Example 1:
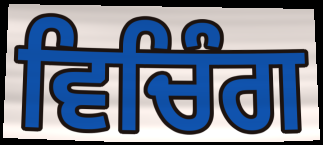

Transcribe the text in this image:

ਵਿਚਿੰਗ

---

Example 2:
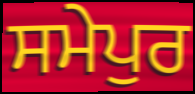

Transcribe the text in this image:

ਸਮੇਪੁਰ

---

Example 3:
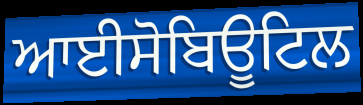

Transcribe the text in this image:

ਆਈਸੋਬਿਊਟਿਲ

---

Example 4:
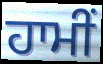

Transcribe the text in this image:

ਹਾਮੀਂ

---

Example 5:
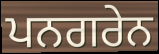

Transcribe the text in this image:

ਪਨਗਰੇਨ